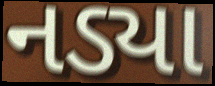
નડ્યા